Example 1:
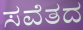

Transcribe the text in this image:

ಸವೆತದ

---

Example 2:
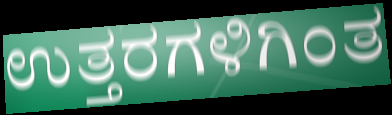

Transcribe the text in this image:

ಉತ್ತರಗಳಿಗಿಂತ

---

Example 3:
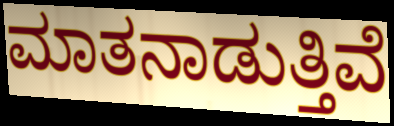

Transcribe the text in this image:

ಮಾತನಾಡುತ್ತಿವೆ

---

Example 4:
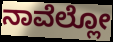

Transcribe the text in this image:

ನಾವೆಲ್ಲೋ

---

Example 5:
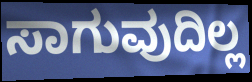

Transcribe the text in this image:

ಸಾಗುವುದಿಲ್ಲ